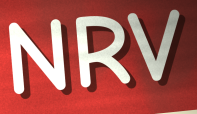
NRV